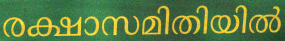
രക്ഷാസമിതിയിൽ